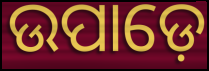
ଉପାଡ଼େ